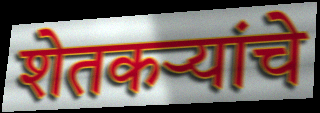
शेतकऱ्यांचे